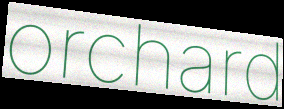
orchard